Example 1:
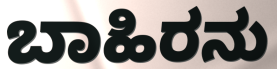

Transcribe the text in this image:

ಬಾಹಿರನು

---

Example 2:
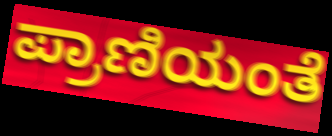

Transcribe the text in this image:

ಪ್ರಾಣಿಯಂತೆ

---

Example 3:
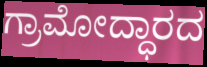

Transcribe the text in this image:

ಗ್ರಾಮೋದ್ಧಾರದ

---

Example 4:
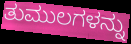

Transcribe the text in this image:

ತುಮುಲಗಳನ್ನು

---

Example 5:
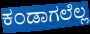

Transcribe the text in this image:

ಕಂಡಾಗಲೆಲ್ಲ